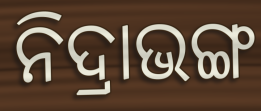
ନିଦ୍ରାଭଙ୍ଗ